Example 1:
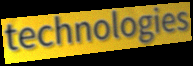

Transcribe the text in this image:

technologies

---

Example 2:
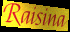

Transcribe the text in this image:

Raisina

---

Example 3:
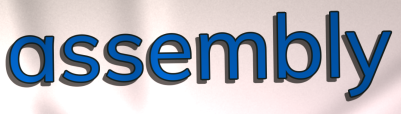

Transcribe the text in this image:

assembly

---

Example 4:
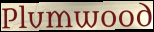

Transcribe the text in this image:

Plumwood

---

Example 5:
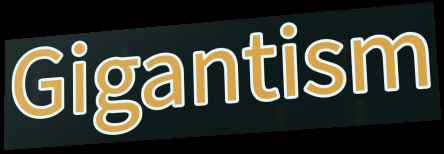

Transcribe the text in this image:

Gigantism